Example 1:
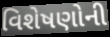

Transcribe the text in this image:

વિશેષણોની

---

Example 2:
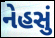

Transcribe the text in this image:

નેહસું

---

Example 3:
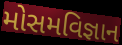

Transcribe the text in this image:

મોસમવિજ્ઞાન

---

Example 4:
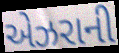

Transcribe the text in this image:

એઝરાની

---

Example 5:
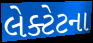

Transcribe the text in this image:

લેક્ટેટના